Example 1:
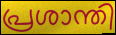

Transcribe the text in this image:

പ്രശാന്തി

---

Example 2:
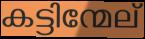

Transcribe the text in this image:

കട്ടിന്മേല്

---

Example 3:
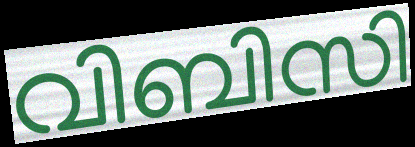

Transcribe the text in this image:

വിബിസി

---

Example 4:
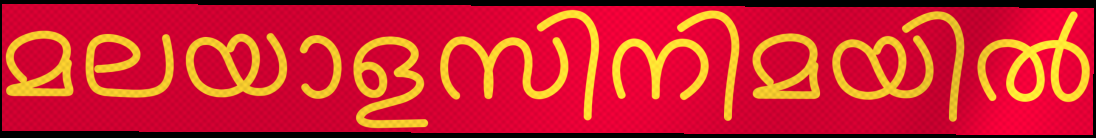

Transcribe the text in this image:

മലയാളസിനിമയിൽ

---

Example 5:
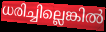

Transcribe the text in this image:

ധരിച്ചില്ലെങ്കിൽ